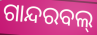
ଗାନ୍ଦରବଲ୍